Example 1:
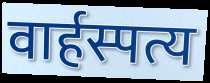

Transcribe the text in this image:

वार्हस्पत्य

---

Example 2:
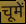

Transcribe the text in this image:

चूमें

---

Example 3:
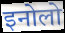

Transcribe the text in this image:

इनोलो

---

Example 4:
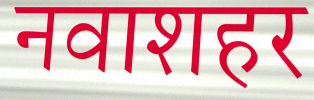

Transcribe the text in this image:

नवाशहर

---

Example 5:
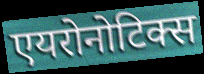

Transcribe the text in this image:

एयरोनोटिक्स